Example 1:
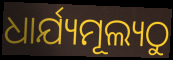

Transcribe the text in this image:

ଧାର୍ଯ୍ୟମୂଲ୍ୟଠୁ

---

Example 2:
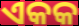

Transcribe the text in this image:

ଏକକ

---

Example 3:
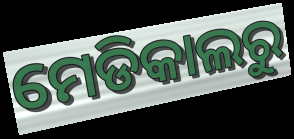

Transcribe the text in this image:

ମେଡିକାଲରୁ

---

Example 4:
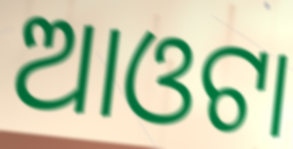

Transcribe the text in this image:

ଆଓଟା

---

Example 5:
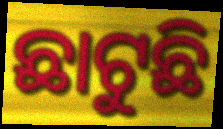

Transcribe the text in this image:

ଛାଟୁଛି